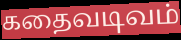
கதைவடிவம்